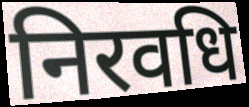
निरवधि